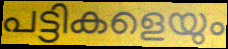
പട്ടികളെയും